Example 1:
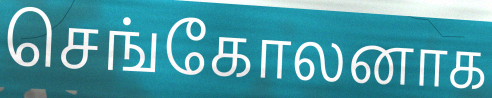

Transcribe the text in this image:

செங்கோலனாக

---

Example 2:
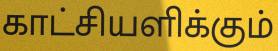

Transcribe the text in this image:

காட்சியளிக்கும்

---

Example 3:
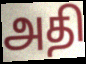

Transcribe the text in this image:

அதி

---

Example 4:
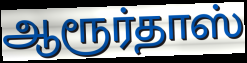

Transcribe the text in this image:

ஆரூர்தாஸ்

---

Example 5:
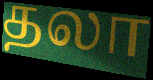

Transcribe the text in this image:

தலா